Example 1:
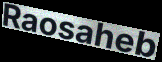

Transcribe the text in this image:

Raosaheb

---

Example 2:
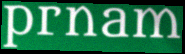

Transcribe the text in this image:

prnam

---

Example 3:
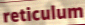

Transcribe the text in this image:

reticulum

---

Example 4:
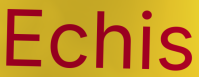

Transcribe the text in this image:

Echis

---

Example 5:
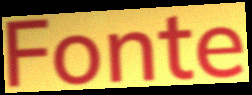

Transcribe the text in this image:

Fonte